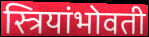
स्त्रियांभोवती